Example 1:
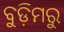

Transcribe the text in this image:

ବୁଡ଼ିମରୁ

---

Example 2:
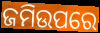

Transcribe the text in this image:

ଜମିଉପରେ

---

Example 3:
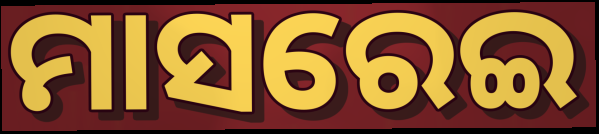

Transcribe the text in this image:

ମାସରେଇ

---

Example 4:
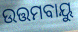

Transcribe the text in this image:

ଉତ୍ତମବାୟୁ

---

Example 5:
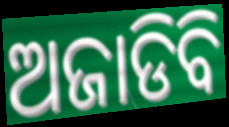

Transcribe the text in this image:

ଅଜାଡିବି